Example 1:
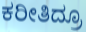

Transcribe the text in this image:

ಕರೀತಿದ್ರೂ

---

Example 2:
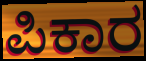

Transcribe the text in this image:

ಪಿಕಾರ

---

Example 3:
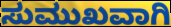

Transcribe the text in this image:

ಸುಮುಖವಾಗಿ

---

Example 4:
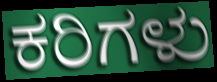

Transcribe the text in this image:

ಕರಿಗಳು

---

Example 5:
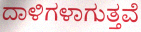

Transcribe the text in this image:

ದಾಳಿಗಳಾಗುತ್ತವೆ